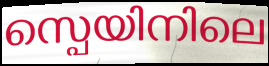
സ്പെയിനിലെ